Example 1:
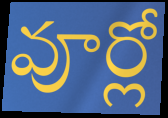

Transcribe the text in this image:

వూర్లో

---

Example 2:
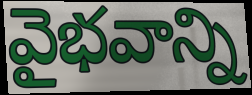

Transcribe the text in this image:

వైభవాన్ని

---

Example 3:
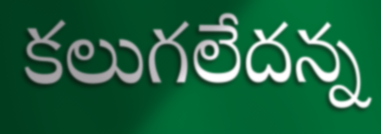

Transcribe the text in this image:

కలుగలేదన్న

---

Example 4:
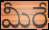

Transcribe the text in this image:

మీరే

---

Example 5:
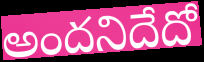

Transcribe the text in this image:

అందనిదేదో